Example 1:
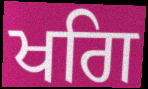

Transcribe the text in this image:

ਖਗਿ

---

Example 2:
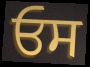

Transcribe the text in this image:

ਓਸ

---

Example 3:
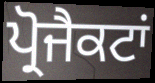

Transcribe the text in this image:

ਪ੍ਰੋਜੈਕਟਾਂ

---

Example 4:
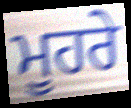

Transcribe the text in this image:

ਮੂਹਰੇ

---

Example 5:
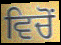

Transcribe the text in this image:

ਵਿਚੋਂ